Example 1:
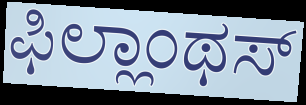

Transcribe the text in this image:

ಫಿಲ್ಲಾಂಥಸ್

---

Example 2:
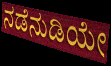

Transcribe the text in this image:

ನಡೆನುಡಿಯೇ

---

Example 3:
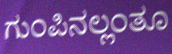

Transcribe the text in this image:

ಗುಂಪಿನಲ್ಲಂತೂ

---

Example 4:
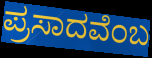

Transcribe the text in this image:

ಪ್ರಸಾದವೆಂಬ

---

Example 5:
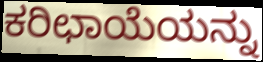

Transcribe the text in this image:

ಕರಿಛಾಯೆಯನ್ನು